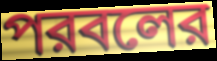
পরবলের